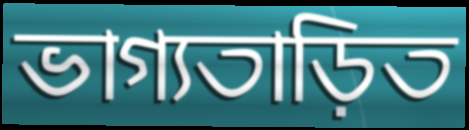
ভাগ্যতাড়িত